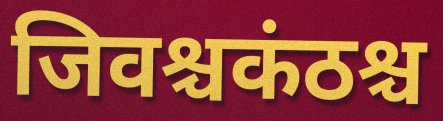
जिवश्चकंठश्च